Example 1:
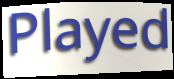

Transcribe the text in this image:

Played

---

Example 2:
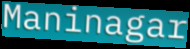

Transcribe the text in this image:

Maninagar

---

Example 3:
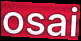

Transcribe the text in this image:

osai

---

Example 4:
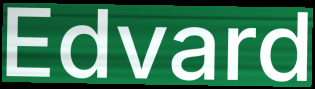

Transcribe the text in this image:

Edvard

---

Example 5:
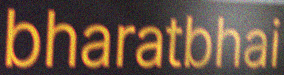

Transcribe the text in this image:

bharatbhai